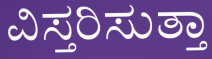
ವಿಸ್ತರಿಸುತ್ತಾ